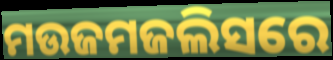
ମଉଜମଜଲିସରେ